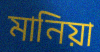
মানিয়া